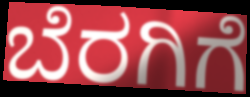
ಬೆರಗಿಗೆ